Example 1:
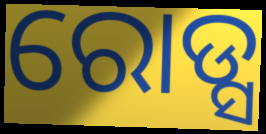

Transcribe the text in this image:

ରୋଡ୍ସ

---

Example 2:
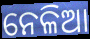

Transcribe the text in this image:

ନେଳିଆ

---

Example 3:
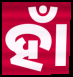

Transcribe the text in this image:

ହାଁ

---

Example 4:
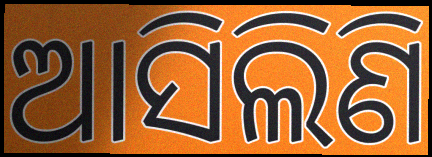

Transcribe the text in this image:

ଆସିଲିଣି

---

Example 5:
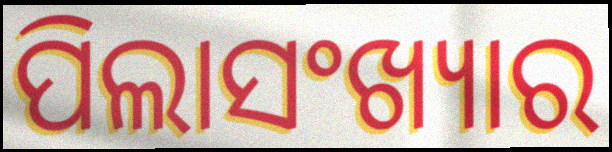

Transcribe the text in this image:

ପିଲାସଂଖ୍ୟାର